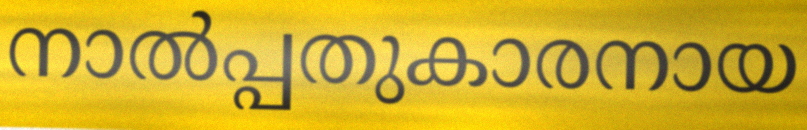
നാൽപ്പതുകാരനായ